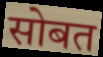
सोबत